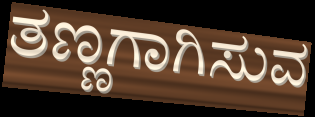
ತಣ್ಣಗಾಗಿಸುವ